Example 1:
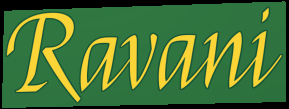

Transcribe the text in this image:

Ravani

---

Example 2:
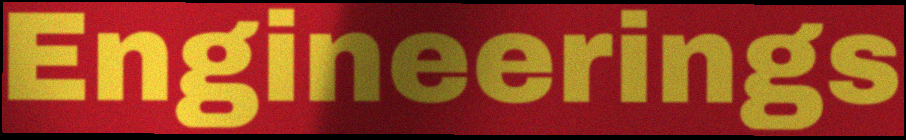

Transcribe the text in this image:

Engineerings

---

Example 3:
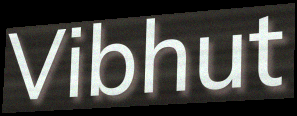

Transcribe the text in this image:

Vibhut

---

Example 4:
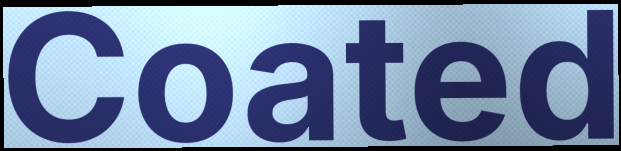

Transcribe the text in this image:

Coated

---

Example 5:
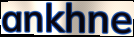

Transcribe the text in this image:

ankhne